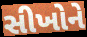
સીખોને